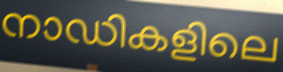
നാഡികളിലെ